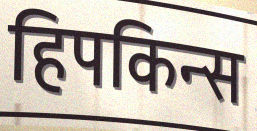
हिपकिन्स